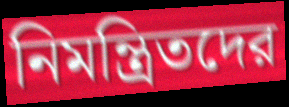
নিমন্ত্রিতদের